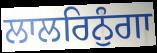
ਲਾਲਰਿਨੁੰਗਾ